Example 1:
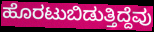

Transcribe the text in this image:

ಹೊರಟುಬಿಡುತ್ತಿದ್ದೆವು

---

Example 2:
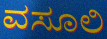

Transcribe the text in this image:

ವಸೂಲಿ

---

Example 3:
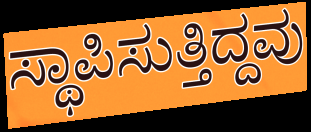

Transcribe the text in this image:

ಸ್ಥಾಪಿಸುತ್ತಿದ್ದವು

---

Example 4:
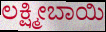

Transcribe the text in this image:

ಲಕ್ಷ್ಮೀಬಾಯಿ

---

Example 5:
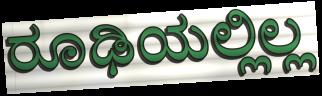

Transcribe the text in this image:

ರೂಢಿಯಲ್ಲಿಲ್ಲ